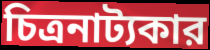
চিত্রনাট্যকার